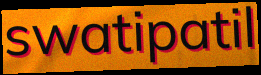
swatipatil